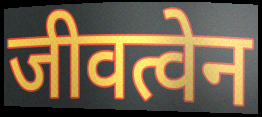
जीवत्वेन